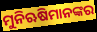
ମୁନିଋଷିମାନଙ୍କର